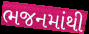
ભજનમાંથી